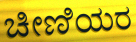
ಚೀಣಿಯರ